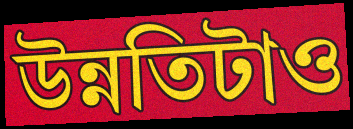
উন্নতিটাও